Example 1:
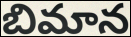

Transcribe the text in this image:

బిమాన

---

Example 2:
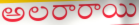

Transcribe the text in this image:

అలరారాయి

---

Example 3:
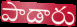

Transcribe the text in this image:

పాడారు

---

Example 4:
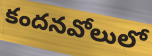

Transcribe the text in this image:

కందనవోలులో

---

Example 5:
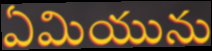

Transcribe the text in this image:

ఏమియును